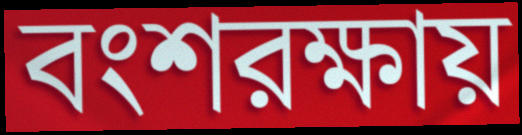
বংশরক্ষায়